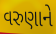
વરુણાને